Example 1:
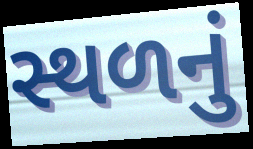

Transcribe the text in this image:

સ્થળનું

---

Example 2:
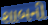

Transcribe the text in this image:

શાબની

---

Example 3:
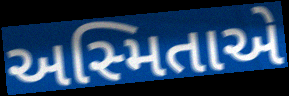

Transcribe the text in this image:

અસ્મિતાએ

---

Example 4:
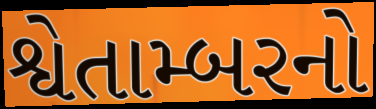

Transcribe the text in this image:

શ્વેતામ્બરનો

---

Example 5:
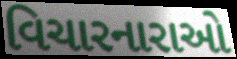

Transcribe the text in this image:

વિચારનારાઓ